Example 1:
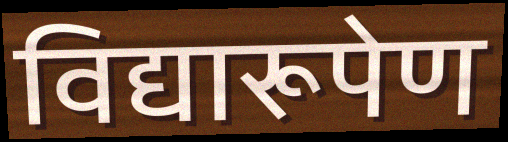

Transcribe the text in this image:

विद्यारूपेण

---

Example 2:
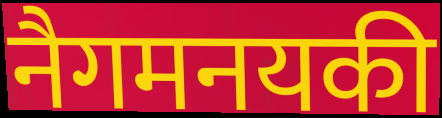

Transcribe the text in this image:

नैगमनयकी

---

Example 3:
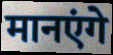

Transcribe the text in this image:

मानएंगे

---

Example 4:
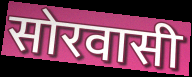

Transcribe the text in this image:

सोरवासी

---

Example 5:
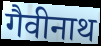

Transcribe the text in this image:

गैवीनाथ